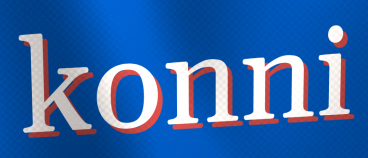
konni